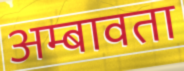
अम्बावता